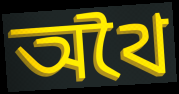
অথৈ